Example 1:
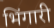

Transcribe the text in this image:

भिंगारी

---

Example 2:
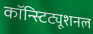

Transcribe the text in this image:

कॉन्स्टिट्यूशनल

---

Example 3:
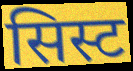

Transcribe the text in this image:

सिस्ट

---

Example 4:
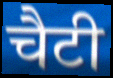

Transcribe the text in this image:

चैटी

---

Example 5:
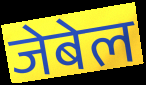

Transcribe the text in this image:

जेबेल